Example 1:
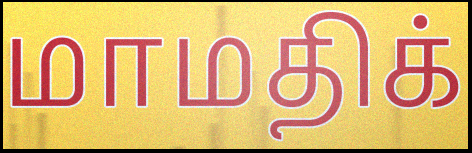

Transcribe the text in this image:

மாமதிக்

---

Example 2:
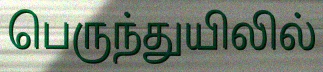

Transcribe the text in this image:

பெருந்துயிலில்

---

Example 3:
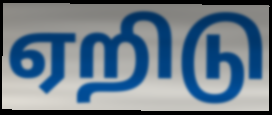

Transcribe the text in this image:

ஏறிடு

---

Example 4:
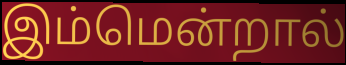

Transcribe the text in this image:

இம்மென்றால்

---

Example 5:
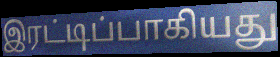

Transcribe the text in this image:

இரட்டிப்பாகியது